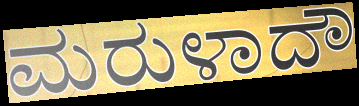
ಮರುಳಾದೌ